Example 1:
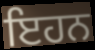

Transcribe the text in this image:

ਇਹਨ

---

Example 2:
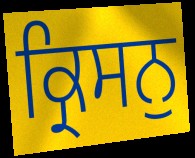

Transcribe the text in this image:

ਕ੍ਰਿਸਨੁ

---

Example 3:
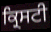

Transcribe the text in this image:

ਕ੍ਰਿਸਟੀ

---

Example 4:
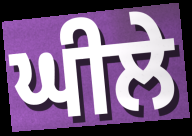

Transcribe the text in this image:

ਘੀਲੇ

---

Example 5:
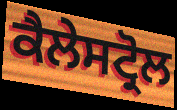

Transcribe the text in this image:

ਕੈਲੇਸਟ੍ਰੋਲ